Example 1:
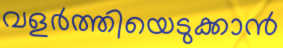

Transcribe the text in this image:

വളർത്തിയെടുക്കാൻ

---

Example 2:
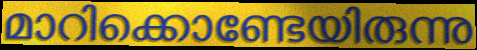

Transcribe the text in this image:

മാറിക്കൊണ്ടേയിരുന്നു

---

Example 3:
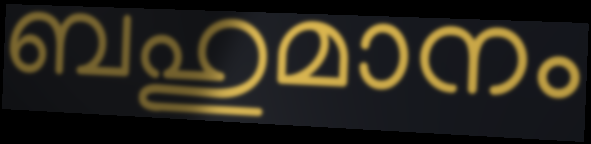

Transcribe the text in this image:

ബഹുമാനം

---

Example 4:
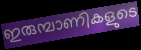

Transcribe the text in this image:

ഇരുമ്പാണികളുടെ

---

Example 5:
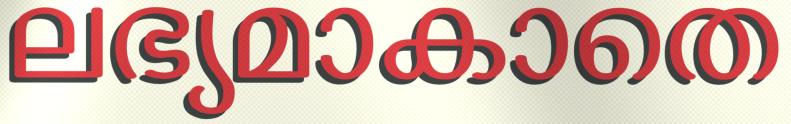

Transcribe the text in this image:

ലഭ്യമാകാതെ